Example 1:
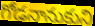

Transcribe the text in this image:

గోడనానుకుని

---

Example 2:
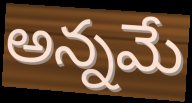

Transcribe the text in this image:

అన్నమే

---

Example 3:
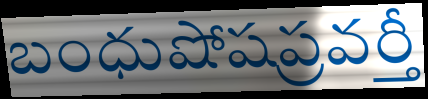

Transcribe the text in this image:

బంధుషోషప్రవర్తీ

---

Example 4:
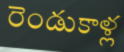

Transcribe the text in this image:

రెండుకాళ్ల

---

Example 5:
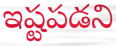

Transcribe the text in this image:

ఇష్టపడని